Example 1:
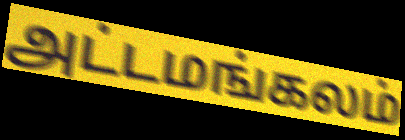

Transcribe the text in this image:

அட்டமங்கலம்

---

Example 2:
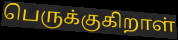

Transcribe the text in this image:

பெருக்குகிறாள்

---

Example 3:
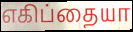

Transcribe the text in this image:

எகிப்தையா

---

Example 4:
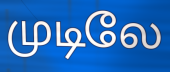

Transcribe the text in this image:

முடிலே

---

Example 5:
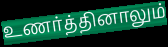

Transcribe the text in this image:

உணர்த்தினாலும்